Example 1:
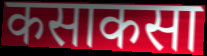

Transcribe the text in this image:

कसाकसा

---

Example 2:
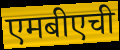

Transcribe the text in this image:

एमबीएची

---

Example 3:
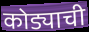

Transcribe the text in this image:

कोड्याची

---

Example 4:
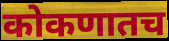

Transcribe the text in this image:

कोकणातच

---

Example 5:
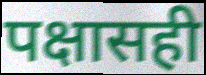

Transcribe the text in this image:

पक्षासही